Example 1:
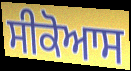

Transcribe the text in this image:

ਸੀਕੋਆਸ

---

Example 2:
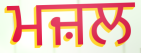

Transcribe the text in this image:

ਮਜ਼ਲ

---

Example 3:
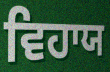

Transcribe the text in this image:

ਵਿਹਾਯ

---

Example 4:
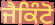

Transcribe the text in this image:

ਜੈਕਿੰਟੋ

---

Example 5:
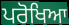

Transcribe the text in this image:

ਪਰੋਖਿਆ